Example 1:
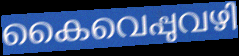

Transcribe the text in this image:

കൈവെപ്പുവഴി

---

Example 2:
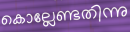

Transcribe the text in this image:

കൊല്ലേണ്ടതിന്നു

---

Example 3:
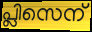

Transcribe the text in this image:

പ്ലിസെന്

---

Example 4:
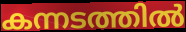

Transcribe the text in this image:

കന്നടത്തിൽ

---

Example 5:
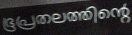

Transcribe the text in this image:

ഭൂപ്രതലത്തിന്റെ